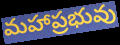
మహాప్రభువు